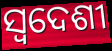
ସ୍ଵଦେଶୀ